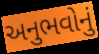
અનુભવોનું